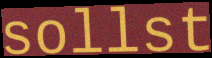
sollst